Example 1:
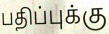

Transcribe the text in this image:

பதிப்புக்கு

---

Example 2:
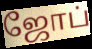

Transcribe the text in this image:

ஜோப்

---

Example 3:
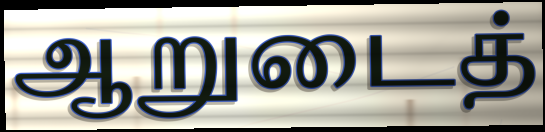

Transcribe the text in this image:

ஆறுடைத்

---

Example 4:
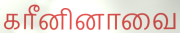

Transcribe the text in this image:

கரீனினாவை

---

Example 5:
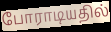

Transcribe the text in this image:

போராடியதில்